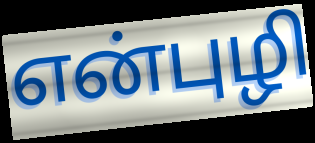
என்புழி